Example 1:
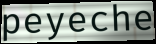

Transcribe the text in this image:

peyeche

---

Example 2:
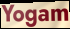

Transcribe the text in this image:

Yogam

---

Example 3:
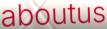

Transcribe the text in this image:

aboutus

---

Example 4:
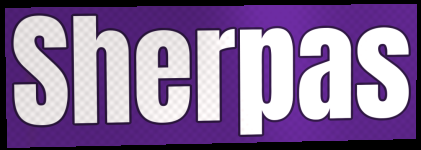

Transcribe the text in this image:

Sherpas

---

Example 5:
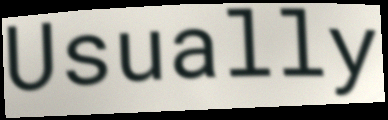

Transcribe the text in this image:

Usually